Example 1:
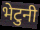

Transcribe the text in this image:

भेटुनी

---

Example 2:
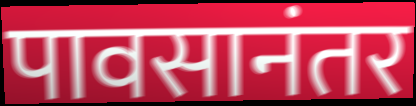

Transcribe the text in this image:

पावसानंतर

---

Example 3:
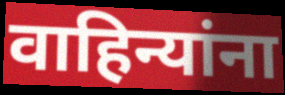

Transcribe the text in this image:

वाहिन्यांना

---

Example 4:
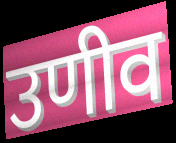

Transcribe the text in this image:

उणीव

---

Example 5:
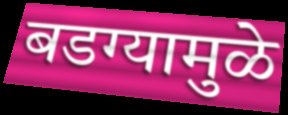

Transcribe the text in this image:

बडग्यामुळे